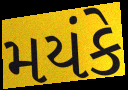
મયંકે